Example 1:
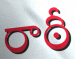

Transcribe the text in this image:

రాఠీ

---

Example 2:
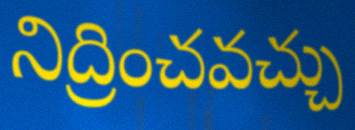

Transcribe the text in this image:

నిద్రించవచ్చు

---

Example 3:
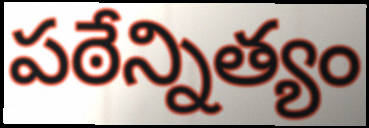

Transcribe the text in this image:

పఠేన్నిత్యం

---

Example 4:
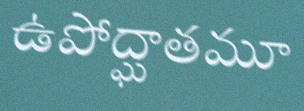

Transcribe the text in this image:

ఉపోద్ఘాతమూ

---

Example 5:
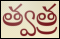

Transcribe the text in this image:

త్వత్ర